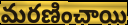
మరణించాయి